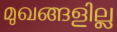
മുഖങ്ങളില്ല